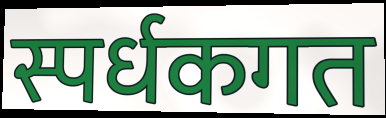
स्पर्धकगत